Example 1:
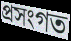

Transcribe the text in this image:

প্ৰসংগত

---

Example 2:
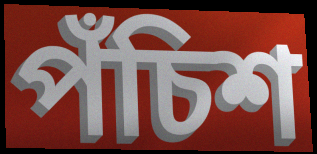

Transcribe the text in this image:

পঁচিশ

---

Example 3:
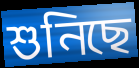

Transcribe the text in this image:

শুনিছে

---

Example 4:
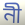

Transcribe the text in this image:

নী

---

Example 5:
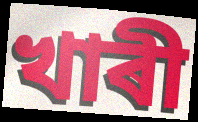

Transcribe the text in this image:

খাৰী